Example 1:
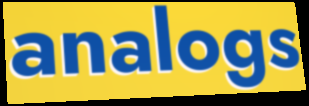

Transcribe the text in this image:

analogs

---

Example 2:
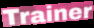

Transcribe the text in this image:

Trainer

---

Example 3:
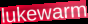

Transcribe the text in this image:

lukewarm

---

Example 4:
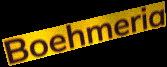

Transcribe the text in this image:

Boehmeria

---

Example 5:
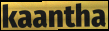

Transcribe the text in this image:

kaantha